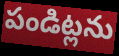
పండిట్లను